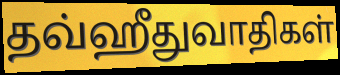
தவ்ஹீதுவாதிகள்